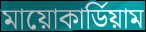
মায়োকার্ডিয়াম